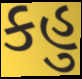
કહુ